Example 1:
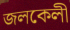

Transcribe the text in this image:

জলকেলী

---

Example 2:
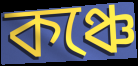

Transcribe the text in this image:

কঞ্চে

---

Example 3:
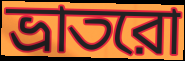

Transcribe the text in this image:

ভ্রাতরো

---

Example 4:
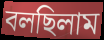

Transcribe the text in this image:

বলছিলাম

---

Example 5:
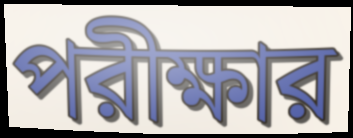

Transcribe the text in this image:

পরীক্ষার